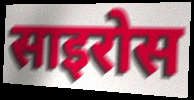
साइरोस